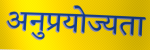
अनुप्रयोज्यता